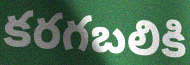
కరగబలికి